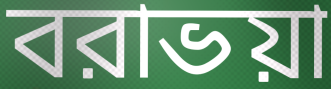
বরাভয়া